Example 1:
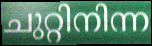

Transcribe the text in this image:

ചുറ്റിനിന്ന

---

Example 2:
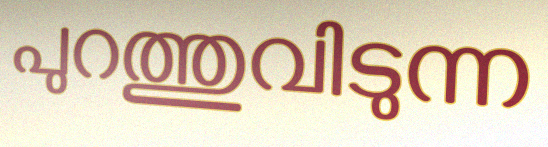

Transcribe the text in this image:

പുറത്തുവിടുന്ന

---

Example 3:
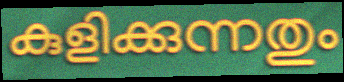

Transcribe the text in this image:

കുളിക്കുന്നതും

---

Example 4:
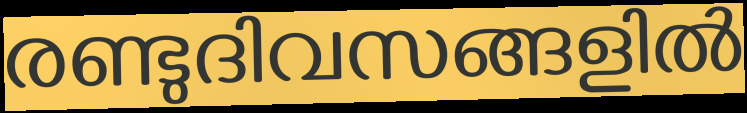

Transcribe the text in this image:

രണ്ടുദിവസങ്ങളിൽ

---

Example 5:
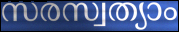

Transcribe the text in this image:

സരസ്വത്യാം